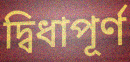
দ্বিধাপূর্ণ